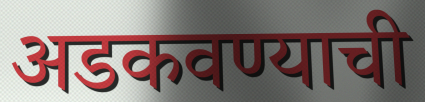
अडकवण्याची